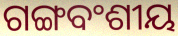
ଗଙ୍ଗବଂଶୀୟ